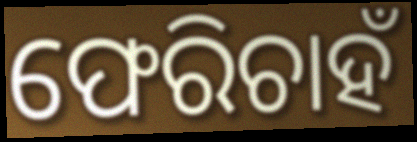
ଫେରିଚାହଁ